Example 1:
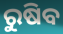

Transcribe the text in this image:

ରୁଷିବ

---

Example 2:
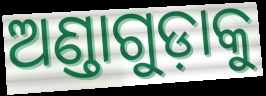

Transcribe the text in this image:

ଅଣ୍ଡାଗୁଡ଼ାକୁ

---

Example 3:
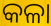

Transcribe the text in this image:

କଳା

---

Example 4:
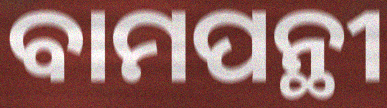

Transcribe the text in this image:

ବାମପନ୍ଥୀ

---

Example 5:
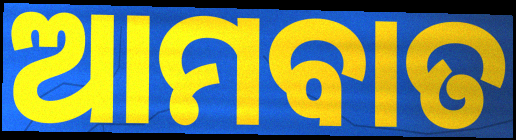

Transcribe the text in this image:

ଆମବାତ